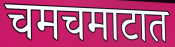
चमचमाटात